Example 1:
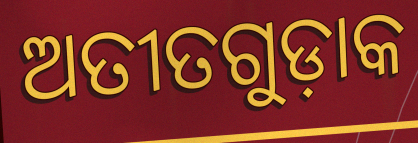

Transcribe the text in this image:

ଅତୀତଗୁଡ଼ାକ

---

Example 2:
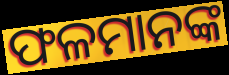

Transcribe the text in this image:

ଫଳମାନଙ୍କ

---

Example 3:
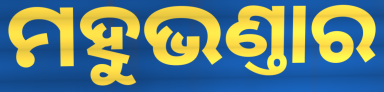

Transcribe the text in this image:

ମହୁଭଣ୍ତାର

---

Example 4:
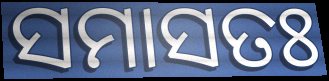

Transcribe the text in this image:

ସମାସତଃ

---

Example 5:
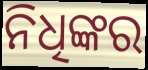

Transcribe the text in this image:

ନିଧିଙ୍କର